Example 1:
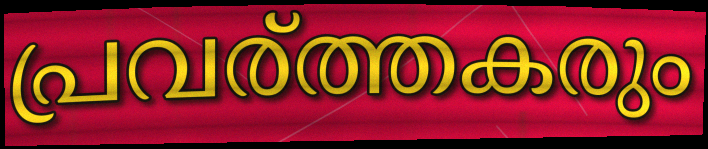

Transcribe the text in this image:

പ്രവര്ത്തകരും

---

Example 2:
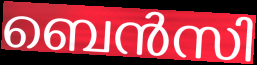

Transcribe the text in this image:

ബെൻസി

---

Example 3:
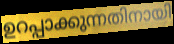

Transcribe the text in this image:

ഉറപ്പാക്കുന്നതിനായി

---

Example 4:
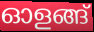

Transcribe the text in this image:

ഓളങ്ങ്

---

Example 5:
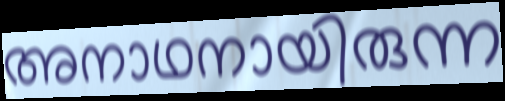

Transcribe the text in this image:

അനാഥനായിരുന്ന